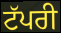
ਟੱਪਰੀ